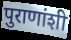
पुराणांशी